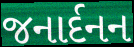
જનાર્દનન